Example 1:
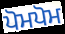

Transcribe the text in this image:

ਪੋਮਪੋਮ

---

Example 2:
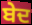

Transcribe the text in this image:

ਬੇਦ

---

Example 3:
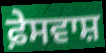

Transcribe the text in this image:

ਫ਼ੇਸਵਾਸ਼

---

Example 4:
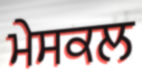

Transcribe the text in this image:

ਮੇਸਕਲ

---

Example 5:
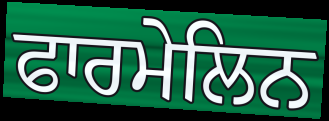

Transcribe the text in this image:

ਫਾਰਮੇਲਿਨ